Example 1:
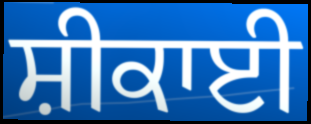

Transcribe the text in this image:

ਸ਼ੀਕਾਈ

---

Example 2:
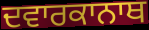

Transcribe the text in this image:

ਦਵਾਰਕਾਨਾਥ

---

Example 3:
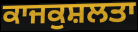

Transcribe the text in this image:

ਕਾਜਕੁਸ਼ਲਤਾ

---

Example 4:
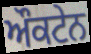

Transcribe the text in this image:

ਔਕਟੇਨ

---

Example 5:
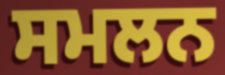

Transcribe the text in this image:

ਸਮਲਨ